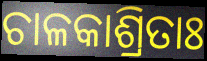
ଚାଳକାଶ୍ରିତାଃ